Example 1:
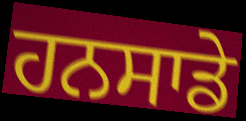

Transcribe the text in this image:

ਹਨਸਾਡੇ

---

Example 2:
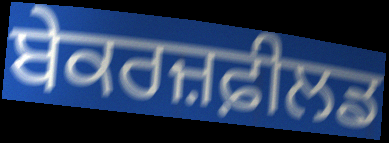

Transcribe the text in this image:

ਬੇਕਰਜ਼ਫ਼ੀਲਡ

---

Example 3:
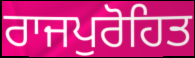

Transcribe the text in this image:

ਰਾਜਪੁਰੋਹਿਤ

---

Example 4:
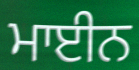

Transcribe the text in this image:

ਮਾਈਨ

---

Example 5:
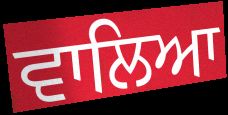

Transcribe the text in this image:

ਵਾਲਿਆ